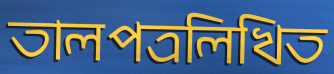
তালপত্রলিখিত